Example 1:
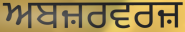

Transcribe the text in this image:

ਅਬਜ਼ਰਵਰਜ਼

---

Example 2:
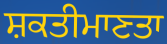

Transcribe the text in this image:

ਸ਼ਕਤੀਮਾਣਤਾ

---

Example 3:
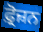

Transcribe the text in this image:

ਫ਼੍ਰੋਜ਼ਨ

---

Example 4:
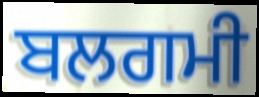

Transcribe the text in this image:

ਬਲਗਮੀ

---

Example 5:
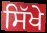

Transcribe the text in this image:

ਸਿੱਖੇ